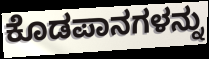
ಕೊಡಪಾನಗಳನ್ನು